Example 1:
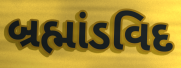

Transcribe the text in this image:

બ્રહ્માંડવિદ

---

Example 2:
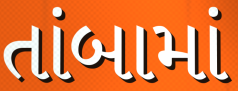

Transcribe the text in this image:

તાંબામાં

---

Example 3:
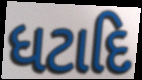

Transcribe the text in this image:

ધટાદિ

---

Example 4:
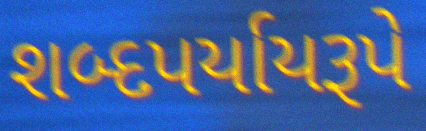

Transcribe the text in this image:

શબ્દપર્યાયરૂપે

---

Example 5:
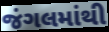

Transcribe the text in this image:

જંગલમાંથી